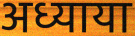
अध्याया